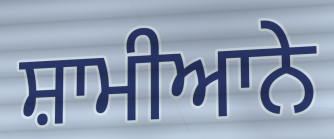
ਸ਼ਾਮੀਆਨੇ